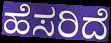
ಹೆಸರಿದೆ